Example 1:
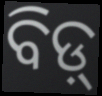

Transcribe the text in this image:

ବିଡ଼୍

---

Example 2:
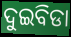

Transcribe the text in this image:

ଦୁଇବିଡା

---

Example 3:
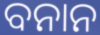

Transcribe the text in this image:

ବନାନ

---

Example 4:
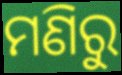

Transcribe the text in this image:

ମଣିରୁ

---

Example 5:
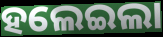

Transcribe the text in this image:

ହଲେଇଲା